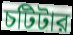
চটিটার